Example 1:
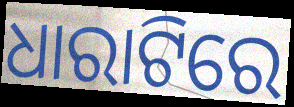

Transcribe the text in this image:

ଧାରାଟିରେ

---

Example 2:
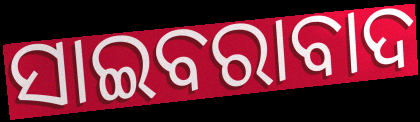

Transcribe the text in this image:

ସାଇବରାବାଦ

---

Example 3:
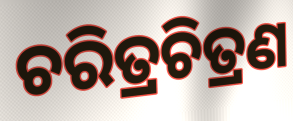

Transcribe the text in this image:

ଚରିତ୍ରଚିତ୍ରଣ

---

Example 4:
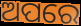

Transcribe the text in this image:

ଅପରେ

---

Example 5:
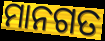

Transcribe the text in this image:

ମାନଗତ